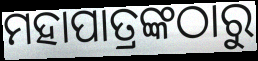
ମହାପାତ୍ରଙ୍କଠାରୁ